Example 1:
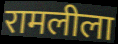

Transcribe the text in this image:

रामलीला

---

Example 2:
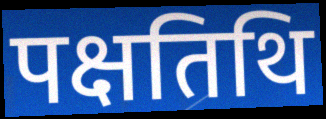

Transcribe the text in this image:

पक्षतिथि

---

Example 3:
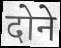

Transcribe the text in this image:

दोने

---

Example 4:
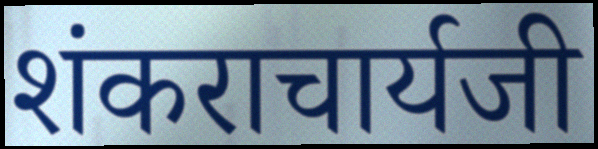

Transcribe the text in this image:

शंकराचार्यजी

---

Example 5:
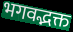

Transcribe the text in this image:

भगवद्भक्त